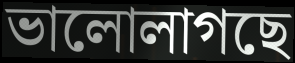
ভালোলাগছে